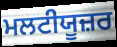
ਮਲਟੀਯੂਜ਼ਰ